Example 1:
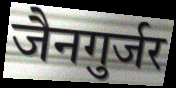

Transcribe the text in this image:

जैनगुर्जर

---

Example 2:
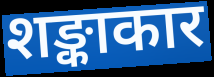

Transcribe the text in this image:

शङ्काकार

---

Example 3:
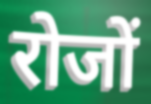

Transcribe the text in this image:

रोजों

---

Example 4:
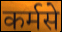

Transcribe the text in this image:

कर्मसे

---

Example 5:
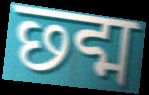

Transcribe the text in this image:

छ्द्म